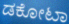
ಡಕೋಟಾ